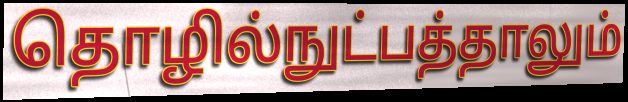
தொழில்நுட்பத்தாலும்